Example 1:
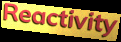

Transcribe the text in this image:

Reactivity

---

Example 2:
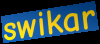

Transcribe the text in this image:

swikar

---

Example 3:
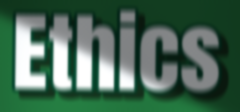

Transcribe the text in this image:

Ethics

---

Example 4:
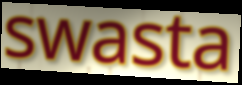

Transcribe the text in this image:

swasta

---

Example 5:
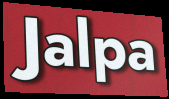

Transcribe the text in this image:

Jalpa